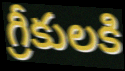
గ్రీకులకి